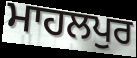
ਮਾਹਲਪੁਰ